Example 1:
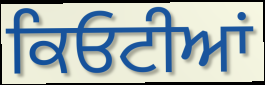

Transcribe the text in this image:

ਕਿਓਟੀਆਂ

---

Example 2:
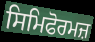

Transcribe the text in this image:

ਸਿਮਿਫੋਰਮਜ਼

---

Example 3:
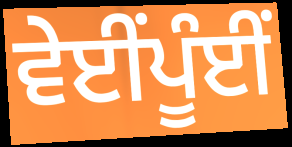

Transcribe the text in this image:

ਵੇਈਂਪੂੰਈਂ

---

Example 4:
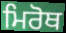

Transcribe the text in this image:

ਮਿਰੋਥ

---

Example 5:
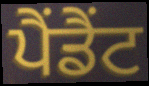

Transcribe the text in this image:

ਪੈਂਡੈਂਟ